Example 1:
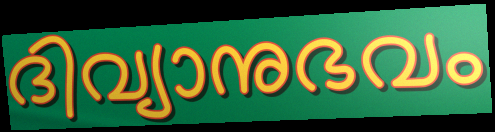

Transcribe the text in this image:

ദിവ്യാനുഭവം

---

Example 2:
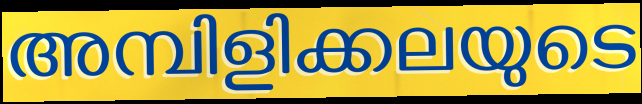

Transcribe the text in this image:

അമ്പിളിക്കലയുടെ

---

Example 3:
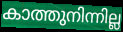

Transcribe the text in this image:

കാത്തുനിന്നില്ല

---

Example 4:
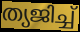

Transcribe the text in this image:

ത്യജിച്ച്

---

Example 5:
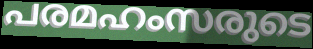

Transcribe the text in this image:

പരമഹംസരുടെ